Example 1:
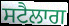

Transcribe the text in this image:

ਸਟੈਲਾਗ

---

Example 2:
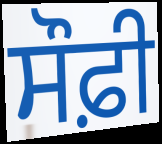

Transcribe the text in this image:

ਸੌਫ਼ੀ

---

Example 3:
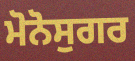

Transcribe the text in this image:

ਮੋਨੋਸੁਗਰ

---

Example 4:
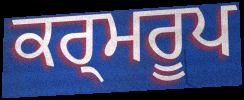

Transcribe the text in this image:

ਕਰ੍ਮਰੂਪ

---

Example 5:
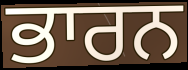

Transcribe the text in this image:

ਭਾਰਨ